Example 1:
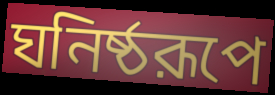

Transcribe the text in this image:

ঘনিষ্ঠরূপে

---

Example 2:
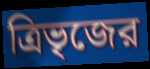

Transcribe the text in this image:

ত্রিভৃজের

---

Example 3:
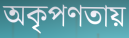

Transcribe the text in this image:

অকৃপণতায়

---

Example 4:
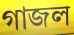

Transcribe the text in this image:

গাজল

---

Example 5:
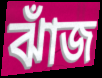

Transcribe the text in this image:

ঝাঁজ